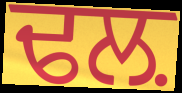
ਢਲ਼